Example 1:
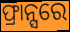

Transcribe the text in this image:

ଫ୍ରାନ୍ସରେ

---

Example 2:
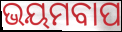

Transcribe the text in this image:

ଭୟମବାପ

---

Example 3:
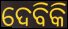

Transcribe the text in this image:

ଦେବିକି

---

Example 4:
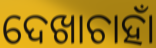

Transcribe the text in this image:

ଦେଖାଚାହାଁ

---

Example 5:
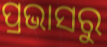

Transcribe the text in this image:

ପ୍ରଭାସରୁ